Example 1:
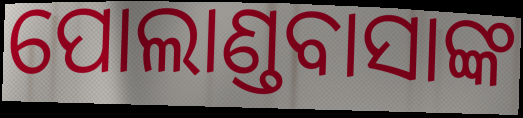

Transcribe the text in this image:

ପୋଲାଣ୍ଡବାସାଙ୍କ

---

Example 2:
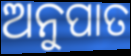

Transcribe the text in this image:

ଅନୁପାତ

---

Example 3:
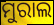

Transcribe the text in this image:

ମୁରାଲ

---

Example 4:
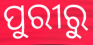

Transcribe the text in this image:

ପୁରୀରୁ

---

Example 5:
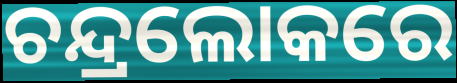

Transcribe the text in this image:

ଚନ୍ଦ୍ରଲୋକରେ